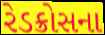
રેડક્રોસના